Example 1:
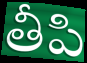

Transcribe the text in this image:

తీపి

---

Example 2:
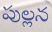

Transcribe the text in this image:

పుల్లన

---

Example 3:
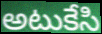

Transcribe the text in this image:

అటుకేసి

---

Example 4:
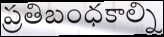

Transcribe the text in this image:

ప్రతిబంధకాల్ని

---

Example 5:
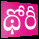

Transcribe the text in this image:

థోరీ